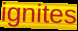
ignites